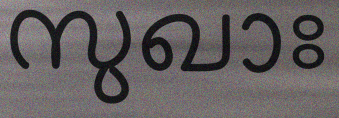
സുഖാഃ